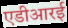
एडीआरई